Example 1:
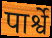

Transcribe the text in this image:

पार्श्वे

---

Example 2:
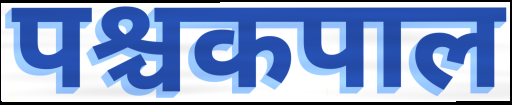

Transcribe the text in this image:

पश्चकपाल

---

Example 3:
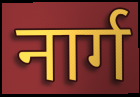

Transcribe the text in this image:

नार्ग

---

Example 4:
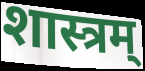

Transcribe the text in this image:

शास्त्रम्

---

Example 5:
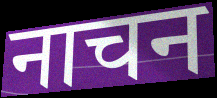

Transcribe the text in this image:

नाचन